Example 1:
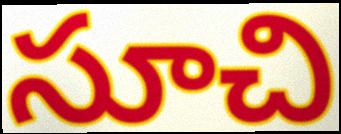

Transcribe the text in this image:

సూచి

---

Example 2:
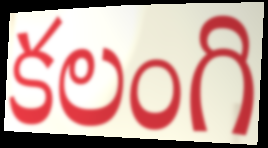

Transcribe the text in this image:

కలంగి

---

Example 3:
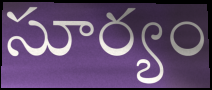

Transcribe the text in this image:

సూర్యం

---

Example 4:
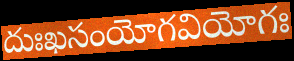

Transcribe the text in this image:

దుఃఖసంయోగవియోగః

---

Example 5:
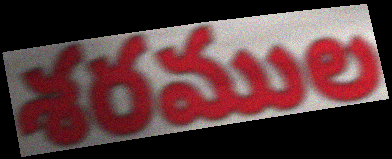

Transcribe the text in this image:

శరముల